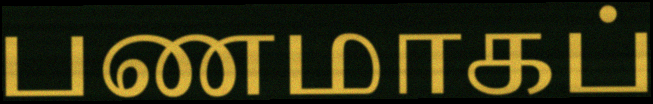
பணமாகப்